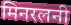
मिनरलनी